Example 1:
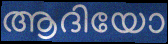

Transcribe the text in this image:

ആദിയോ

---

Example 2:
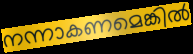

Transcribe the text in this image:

നന്നാകണമെങ്കിൽ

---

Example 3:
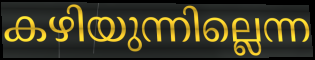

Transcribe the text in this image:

കഴിയുന്നില്ലെന്ന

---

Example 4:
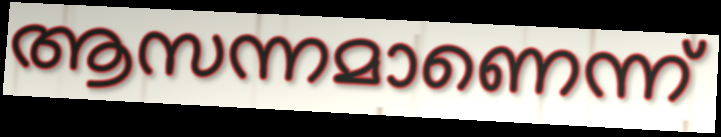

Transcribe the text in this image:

ആസന്നമാണെന്ന്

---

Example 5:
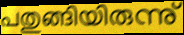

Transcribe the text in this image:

പതുങ്ങിയിരുന്നു്